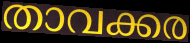
താവക്കര